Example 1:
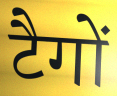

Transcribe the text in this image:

टैगों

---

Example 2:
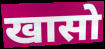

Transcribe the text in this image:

खासो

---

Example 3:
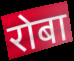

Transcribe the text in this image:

रोबा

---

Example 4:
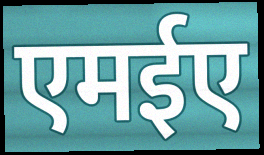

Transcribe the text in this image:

एमईए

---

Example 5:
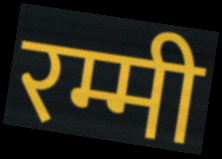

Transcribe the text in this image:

रम्मी